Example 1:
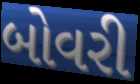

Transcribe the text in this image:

બોવરી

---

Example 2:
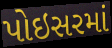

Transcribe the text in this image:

પોઇસરમાં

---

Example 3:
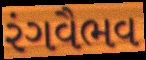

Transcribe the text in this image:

રંગવૈભવ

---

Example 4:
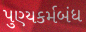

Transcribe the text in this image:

પુણ્યકર્મબંધ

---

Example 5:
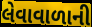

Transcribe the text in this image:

લેવાવાળાની